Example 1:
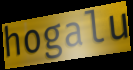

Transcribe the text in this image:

hogalu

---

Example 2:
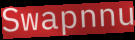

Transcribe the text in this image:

Swapnnu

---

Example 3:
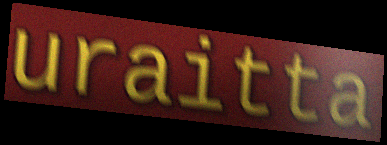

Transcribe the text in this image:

uraitta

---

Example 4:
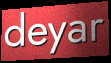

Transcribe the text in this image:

deyar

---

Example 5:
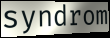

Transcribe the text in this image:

syndrom